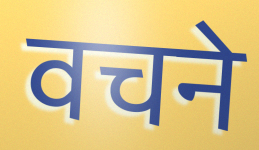
वचने